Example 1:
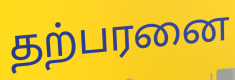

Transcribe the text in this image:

தற்பரனை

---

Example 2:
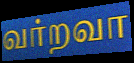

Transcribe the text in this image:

வர்றவா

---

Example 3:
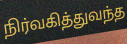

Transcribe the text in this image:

நிர்வகித்துவந்த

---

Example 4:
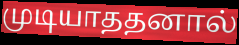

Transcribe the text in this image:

முடியாததனால்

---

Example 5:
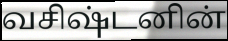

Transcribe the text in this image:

வசிஷ்டனின்